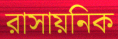
রাসায়নিক